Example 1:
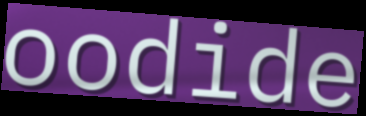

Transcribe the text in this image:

oodide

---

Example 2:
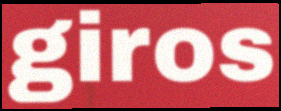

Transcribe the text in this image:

giros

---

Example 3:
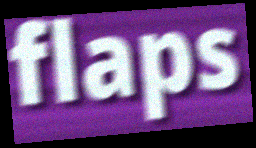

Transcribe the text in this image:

flaps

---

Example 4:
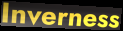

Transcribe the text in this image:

Inverness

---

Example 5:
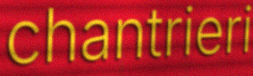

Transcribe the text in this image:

chantrieri